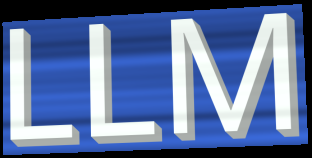
LLM